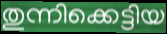
തുന്നിക്കെട്ടിയ